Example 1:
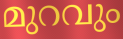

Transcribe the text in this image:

മുറവും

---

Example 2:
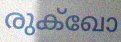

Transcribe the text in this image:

രുക്ഖോ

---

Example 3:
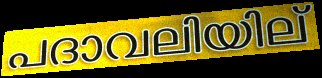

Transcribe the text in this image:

പദാവലിയില്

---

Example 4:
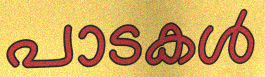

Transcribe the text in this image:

പാടകൾ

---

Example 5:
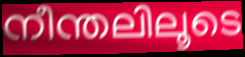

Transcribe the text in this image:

നീന്തലിലൂടെ